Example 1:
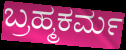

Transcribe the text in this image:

ಬ್ರಹ್ಮಕರ್ಮ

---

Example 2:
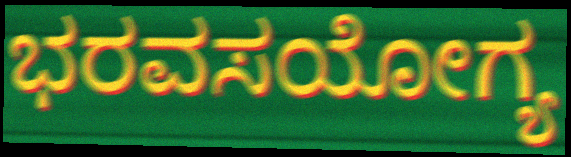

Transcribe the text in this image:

ಭರವಸಯೋಗ್ಯ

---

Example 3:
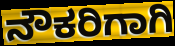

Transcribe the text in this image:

ನೌಕರಿಗಾಗಿ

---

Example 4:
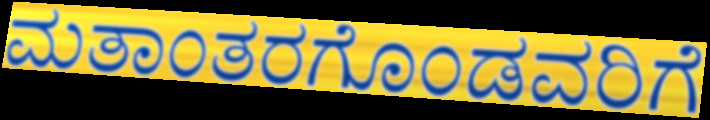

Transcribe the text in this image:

ಮತಾಂತರಗೊಂಡವರಿಗೆ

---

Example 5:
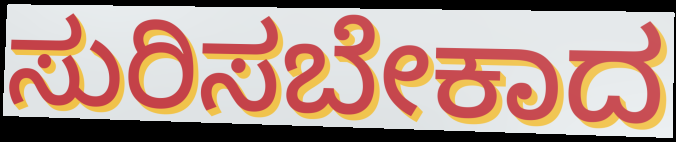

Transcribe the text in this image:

ಸುರಿಸಬೇಕಾದ